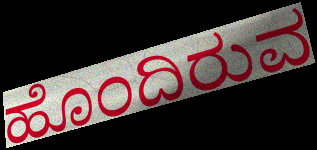
ಹೊಂದಿರುವ